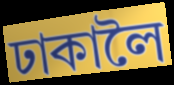
ঢাকালৈ